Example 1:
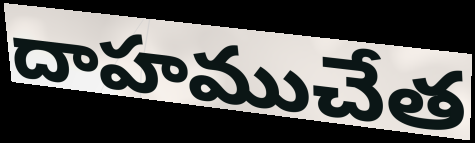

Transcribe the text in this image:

దాహముచేత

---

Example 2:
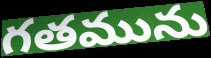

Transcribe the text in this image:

గతమును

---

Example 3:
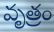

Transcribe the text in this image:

వృత్రం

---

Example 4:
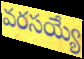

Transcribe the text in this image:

వరసయ్యే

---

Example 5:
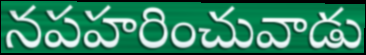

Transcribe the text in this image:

నపహరించువాడు